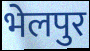
भेलपुर